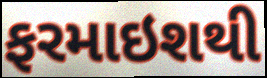
ફરમાઇશથી